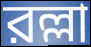
রল্লা